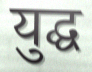
युद्घ